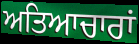
ਅਤਿਆਚਾਰਾਂ